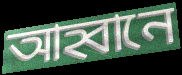
আহ্বানে